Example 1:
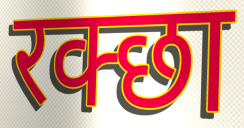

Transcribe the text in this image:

रक्छा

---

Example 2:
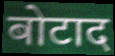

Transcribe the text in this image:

बोटाद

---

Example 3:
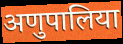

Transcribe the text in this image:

अणुपालिया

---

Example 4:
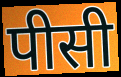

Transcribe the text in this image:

पीसी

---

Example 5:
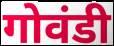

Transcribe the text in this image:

गोवंडी